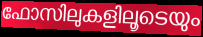
ഫോസിലുകളിലൂടെയും